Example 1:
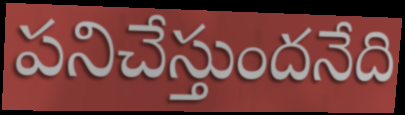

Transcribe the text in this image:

పనిచేస్తుందనేది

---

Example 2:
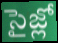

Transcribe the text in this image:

సైజ్లో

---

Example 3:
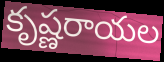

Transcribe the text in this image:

కృష్ణరాయల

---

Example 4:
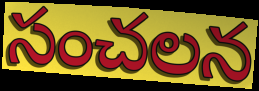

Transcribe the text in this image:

సంచలన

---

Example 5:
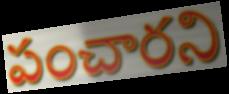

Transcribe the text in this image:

పంచారని